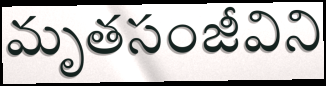
మృతసంజీవిని